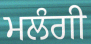
ਮਲੰਗੀ